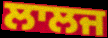
ਲਾਲਜ